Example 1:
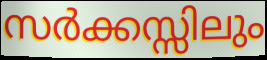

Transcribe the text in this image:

സർക്കസ്സിലും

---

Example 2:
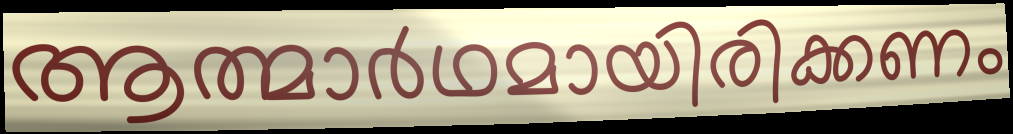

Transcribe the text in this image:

ആത്മാർഥമായിരിക്കണം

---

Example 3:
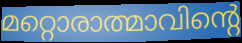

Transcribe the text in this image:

മറ്റൊരാത്മാവിന്റെ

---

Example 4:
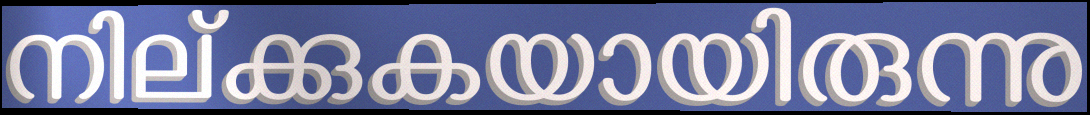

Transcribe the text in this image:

നില്ക്കുകയായിരുന്നു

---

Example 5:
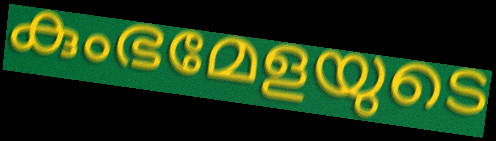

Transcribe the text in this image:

കുംഭമേളയുടെ